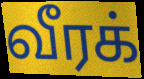
வீரக்